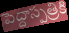
పెద్దాస్పత్రికి